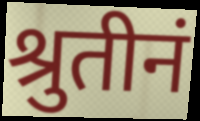
श्रुतीनं